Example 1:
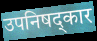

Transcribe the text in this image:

उपनिषद्कार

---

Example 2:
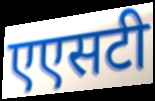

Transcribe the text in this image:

एएसटी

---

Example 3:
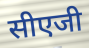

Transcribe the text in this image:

सीएजी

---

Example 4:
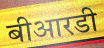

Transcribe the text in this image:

बीआरडी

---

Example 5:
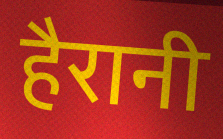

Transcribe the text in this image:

हैरानी